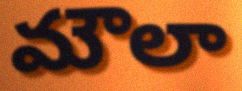
మౌలా